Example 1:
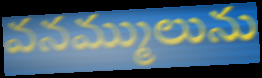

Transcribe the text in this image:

వనమ్ములును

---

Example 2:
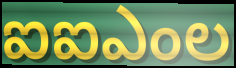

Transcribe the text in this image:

ఐఐఎంల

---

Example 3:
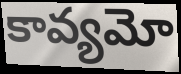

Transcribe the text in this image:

కావ్యమో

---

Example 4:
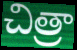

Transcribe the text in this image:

చిత్రా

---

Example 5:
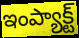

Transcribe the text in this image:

ఇంప్యాక్ట్